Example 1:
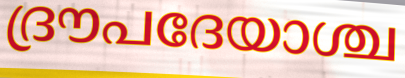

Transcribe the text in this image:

ദ്രൗപദേയാശ്ച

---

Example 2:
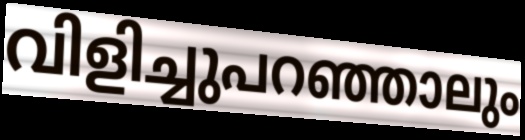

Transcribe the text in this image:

വിളിച്ചുപറഞ്ഞാലും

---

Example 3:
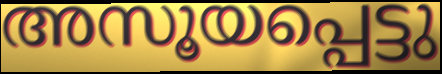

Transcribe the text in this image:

അസൂയപ്പെട്ടു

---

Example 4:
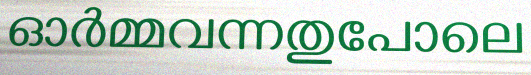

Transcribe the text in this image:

ഓർമ്മവന്നതുപോലെ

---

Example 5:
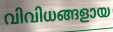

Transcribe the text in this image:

വിവിധങ്ങളായ